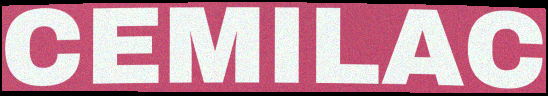
CEMILAC